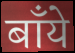
बाँये